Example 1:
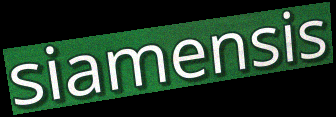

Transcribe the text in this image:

siamensis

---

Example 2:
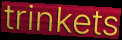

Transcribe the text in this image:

trinkets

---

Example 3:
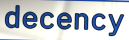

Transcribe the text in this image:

decency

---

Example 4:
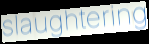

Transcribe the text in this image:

slaughtering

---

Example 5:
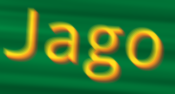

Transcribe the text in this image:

Jago